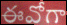
ఈవోగా